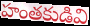
హంతకుడివి